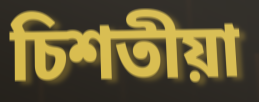
চিশতীয়া